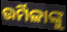
ଉର୍ମିଳାଙ୍କୁ